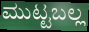
ಮುಟ್ಟಬಲ್ಲ